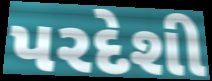
પરદેશી